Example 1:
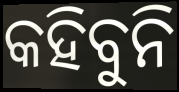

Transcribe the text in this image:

କହିବୁନି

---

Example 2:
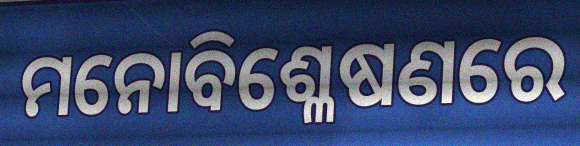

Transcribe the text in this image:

ମନୋବିଶ୍ଳେଷଣରେ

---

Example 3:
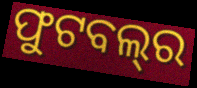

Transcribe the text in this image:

ଫୁଟବଲ୍‍ର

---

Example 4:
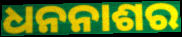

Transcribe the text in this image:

ଧନନାଶର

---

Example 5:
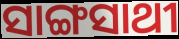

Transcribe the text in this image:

ସାଙ୍ଗସାଥୀ